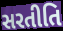
સરતીતિ